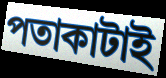
পতাকাটাই